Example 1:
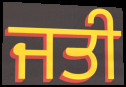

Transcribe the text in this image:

ਜਤੀ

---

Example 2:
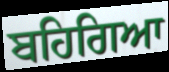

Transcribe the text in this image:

ਬਹਿਗਿਆ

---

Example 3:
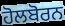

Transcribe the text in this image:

ਹੋਲਬੋਰਨ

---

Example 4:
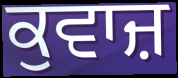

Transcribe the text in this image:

ਕੁਵਾਜ਼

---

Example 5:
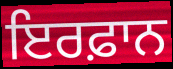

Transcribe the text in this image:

ਇਰਫ਼ਾਨ